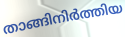
താങ്ങിനിർത്തിയ